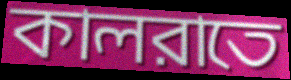
কালরাতে